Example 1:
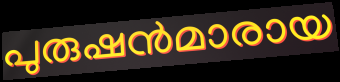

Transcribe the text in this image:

പുരുഷൻമാരായ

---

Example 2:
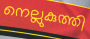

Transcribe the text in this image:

നെല്ലുകുത്തി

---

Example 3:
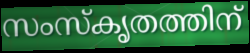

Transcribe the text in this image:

സംസ്കൃതത്തിന്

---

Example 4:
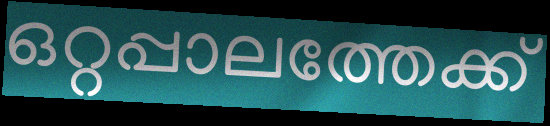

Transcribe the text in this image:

ഒറ്റപ്പാലത്തേക്ക്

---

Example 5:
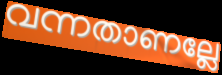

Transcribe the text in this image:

വന്നതാണല്ലേ